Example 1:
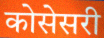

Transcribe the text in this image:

कोसेसरी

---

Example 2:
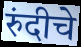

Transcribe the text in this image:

रुंदीचे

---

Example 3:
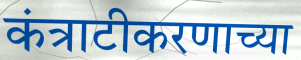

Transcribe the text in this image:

कंत्राटीकरणाच्या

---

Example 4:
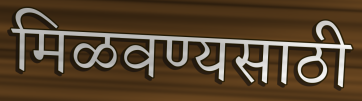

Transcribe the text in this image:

मिळवण्यसाठी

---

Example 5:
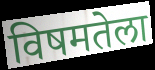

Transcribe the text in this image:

विषमतेला